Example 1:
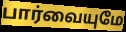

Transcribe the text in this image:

பார்வையுமே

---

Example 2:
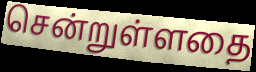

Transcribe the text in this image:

சென்றுள்ளதை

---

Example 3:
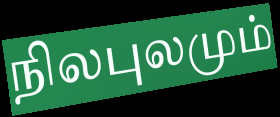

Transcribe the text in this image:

நிலபுலமும்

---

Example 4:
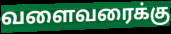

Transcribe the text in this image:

வளைவரைக்கு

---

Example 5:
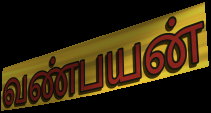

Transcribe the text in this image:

வண்பயன்